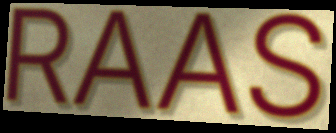
RAAS